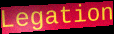
Legation